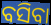
ବସିବା